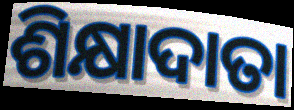
ଶିକ୍ଷାଦାତା